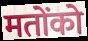
मतोंको